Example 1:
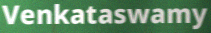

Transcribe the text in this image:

Venkataswamy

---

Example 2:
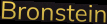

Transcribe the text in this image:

Bronstein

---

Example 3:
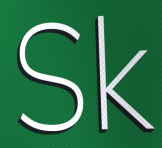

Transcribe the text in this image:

Sk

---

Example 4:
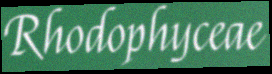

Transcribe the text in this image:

Rhodophyceae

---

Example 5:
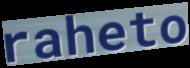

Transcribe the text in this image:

raheto